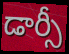
డార్సీ